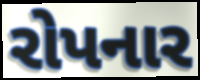
રોપનાર